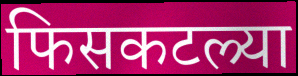
फिसकटल्या